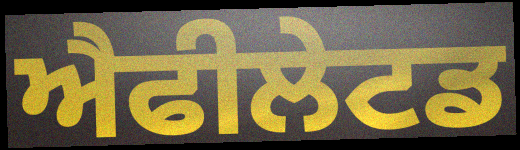
ਐਫੀਲੇਟਡ